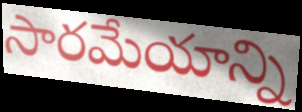
సారమేయాన్ని